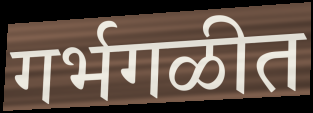
गर्भगळीत